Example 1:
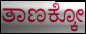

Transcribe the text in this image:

ತಾಣಕ್ಕೋ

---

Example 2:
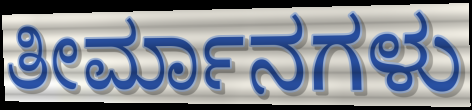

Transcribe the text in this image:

ತೀರ್ಮಾನಗಳು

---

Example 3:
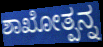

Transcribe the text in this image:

ಶಾಖೋತ್ಪನ್ನ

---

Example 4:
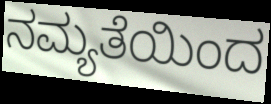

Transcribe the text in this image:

ನಮ್ಯತೆಯಿಂದ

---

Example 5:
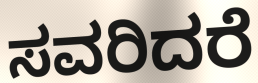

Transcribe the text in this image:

ಸವರಿದರೆ